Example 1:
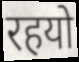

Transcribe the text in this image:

रहयो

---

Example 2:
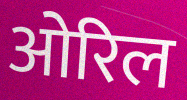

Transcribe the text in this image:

ओरिल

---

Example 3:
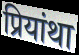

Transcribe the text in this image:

प्रियांथा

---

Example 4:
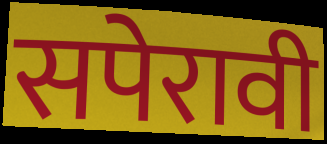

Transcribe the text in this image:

सपेरावी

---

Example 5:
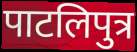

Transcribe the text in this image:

पाटलिपुत्र